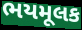
ભયમૂલક